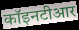
कॉइनटीआर